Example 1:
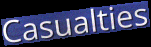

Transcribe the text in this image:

Casualties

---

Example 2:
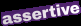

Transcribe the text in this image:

assertive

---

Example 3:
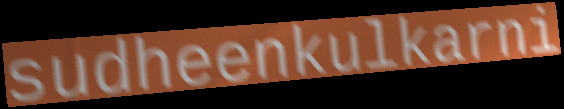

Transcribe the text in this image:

sudheenkulkarni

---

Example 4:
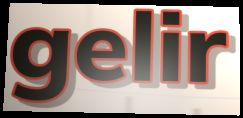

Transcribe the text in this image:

gelir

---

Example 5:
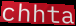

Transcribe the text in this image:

chhta